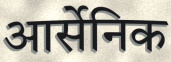
आर्सेनिक